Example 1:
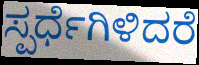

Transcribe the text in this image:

ಸ್ಪರ್ಧೆಗಿಳಿದರೆ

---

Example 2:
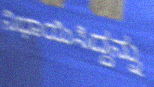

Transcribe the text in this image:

ನಿಭಾಯಿಸಿದ್ದನ್ನು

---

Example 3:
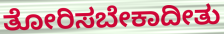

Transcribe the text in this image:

ತೋರಿಸಬೇಕಾದೀತು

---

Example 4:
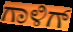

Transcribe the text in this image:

ಗಾಳಿಗ್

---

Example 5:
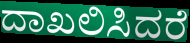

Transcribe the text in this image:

ದಾಖಲಿಸಿದರೆ